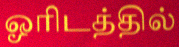
ஓரிடத்தில்